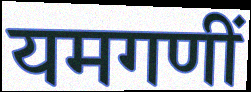
यमगणीं